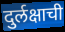
दुर्लक्षाची